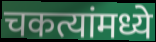
चकत्यांमध्ये